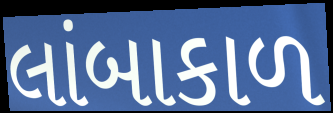
લાંબાકાળ